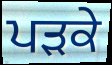
ਪੜਕੇ